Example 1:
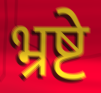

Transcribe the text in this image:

भ्रष्टे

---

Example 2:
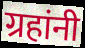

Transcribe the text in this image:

ग्रहांनी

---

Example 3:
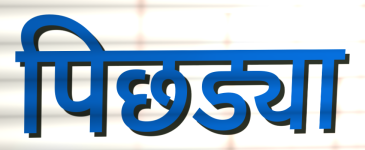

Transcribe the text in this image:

पिछड्या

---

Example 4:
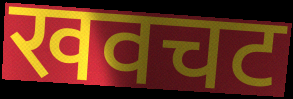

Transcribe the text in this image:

खवचट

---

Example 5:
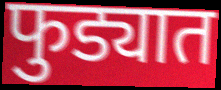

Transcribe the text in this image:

फुड्यात